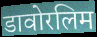
डावोरलिम